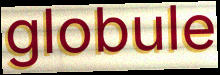
globule